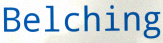
Belching